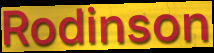
Rodinson